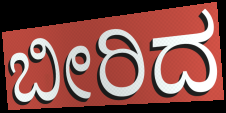
ಬೀರಿದ